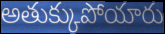
అతుక్కుపోయారు